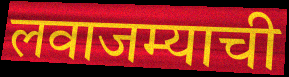
लवाजम्याची